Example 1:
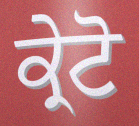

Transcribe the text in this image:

ਕ੍ਰੇਟੋ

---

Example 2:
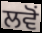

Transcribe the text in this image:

ਲਵੋਂ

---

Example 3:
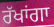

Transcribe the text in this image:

ਰੱਖਾਂਗਾ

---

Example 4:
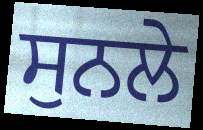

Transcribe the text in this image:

ਸੁਨਲੇ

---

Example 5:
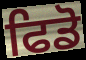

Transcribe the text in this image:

ਫਿਡੋ